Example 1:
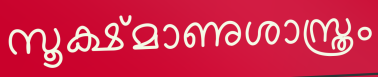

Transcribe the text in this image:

സൂക്ഷ്മാണുശാസ്ത്രം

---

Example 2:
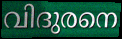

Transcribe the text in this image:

വിദുരനെ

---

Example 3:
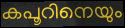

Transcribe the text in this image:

കപൂറിനെയും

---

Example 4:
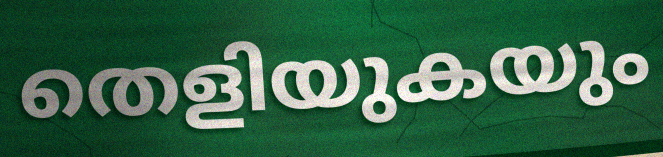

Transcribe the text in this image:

തെളിയുകയും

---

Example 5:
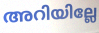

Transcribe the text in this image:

അറിയില്ലേ